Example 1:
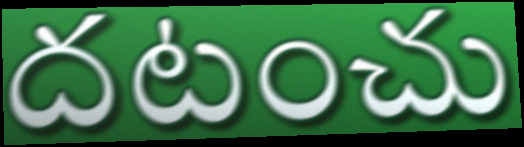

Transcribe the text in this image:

దటంచు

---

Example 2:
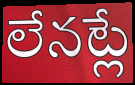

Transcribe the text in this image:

లేనట్లే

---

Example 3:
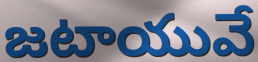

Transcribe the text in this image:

జటాయువే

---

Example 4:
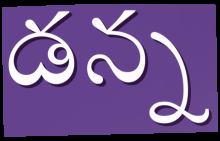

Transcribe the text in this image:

డన్న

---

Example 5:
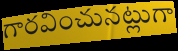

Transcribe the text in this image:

గారవించునట్లుగా